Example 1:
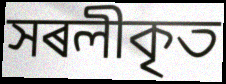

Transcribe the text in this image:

সৰলীকৃত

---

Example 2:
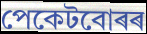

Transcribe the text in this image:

পেকেটবোৰৰ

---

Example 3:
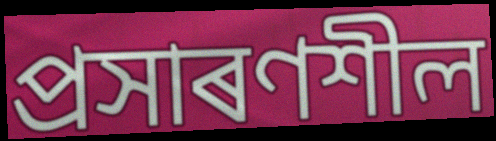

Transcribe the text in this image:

প্ৰসাৰণশীল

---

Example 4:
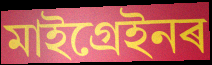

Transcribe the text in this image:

মাইগ্ৰেইনৰ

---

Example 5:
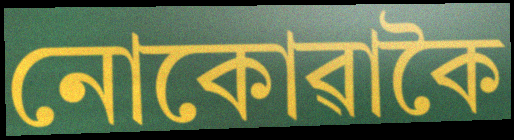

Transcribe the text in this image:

নোকোৱাকৈ